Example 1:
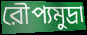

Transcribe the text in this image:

রৌপ্যমুদ্রা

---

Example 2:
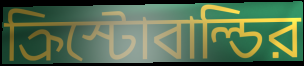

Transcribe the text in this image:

ক্রিস্টোবাল্ডির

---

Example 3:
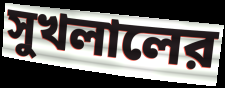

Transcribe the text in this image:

সুখলালের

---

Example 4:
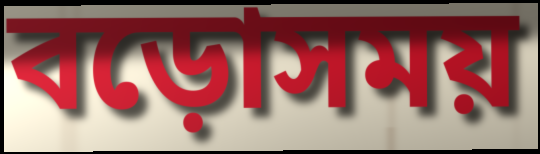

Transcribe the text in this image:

বড়োসময়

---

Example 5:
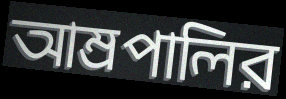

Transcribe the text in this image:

আম্রপালির